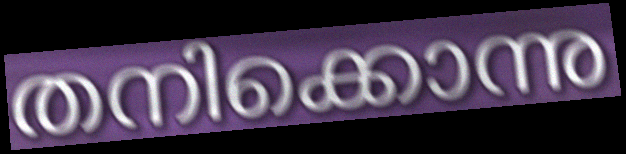
തനിക്കൊന്നു